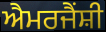
ਐਮਰਜੈਂਸ਼ੀ